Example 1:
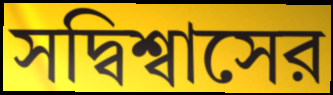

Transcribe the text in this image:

সদ্বিশ্বাসের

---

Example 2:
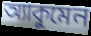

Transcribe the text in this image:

অ্যাকুমেন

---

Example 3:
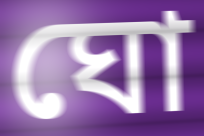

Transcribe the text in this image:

ঘো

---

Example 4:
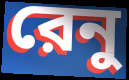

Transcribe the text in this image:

রেনু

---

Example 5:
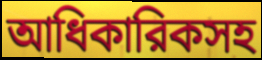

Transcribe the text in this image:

আধিকারিকসহ